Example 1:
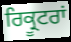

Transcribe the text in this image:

ਰਿਕ੍ਰੂਟਰਾਂ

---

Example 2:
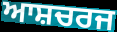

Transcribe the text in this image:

ਆਸ਼ਚਰਜ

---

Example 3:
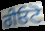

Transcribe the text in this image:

ਰੀਓਟੋ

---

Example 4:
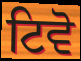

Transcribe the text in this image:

ਟਿਵੋ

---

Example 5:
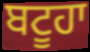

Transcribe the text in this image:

ਬਟੂਹਾ